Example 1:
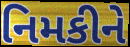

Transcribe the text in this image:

નિમકીને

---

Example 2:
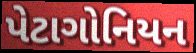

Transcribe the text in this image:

પેટાગોનિયન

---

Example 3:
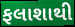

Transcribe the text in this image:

ફલાશાથી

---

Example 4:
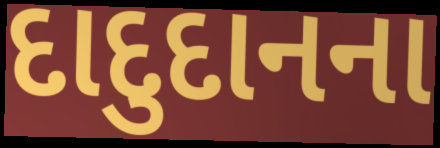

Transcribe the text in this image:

દાદુદાનના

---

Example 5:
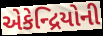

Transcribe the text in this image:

એકેન્દ્રિયોની